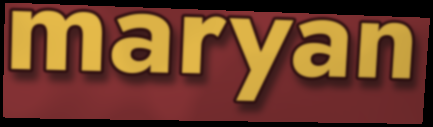
maryan